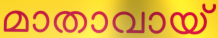
മാതാവായ്